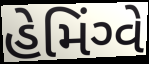
હેમિંગ્વે